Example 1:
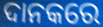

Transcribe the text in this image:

ଦାନକରେ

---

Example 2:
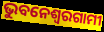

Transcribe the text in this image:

ଭୁବନେଶ୍ୱରଗାମୀ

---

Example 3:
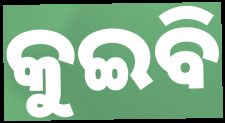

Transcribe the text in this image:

କୁଇବି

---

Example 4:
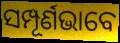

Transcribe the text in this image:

ସମ୍ପୂର୍ଣଭାବେ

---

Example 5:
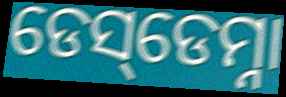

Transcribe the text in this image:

ଡେସ୍‌ଡେମ୍ନା